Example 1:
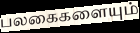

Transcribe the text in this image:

பலகைகளையும்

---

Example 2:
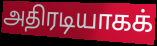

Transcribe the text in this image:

அதிரடியாகக்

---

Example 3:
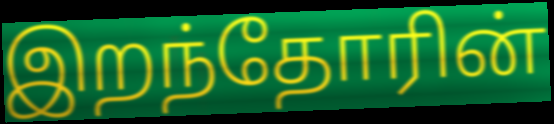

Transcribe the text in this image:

இறந்தோரின்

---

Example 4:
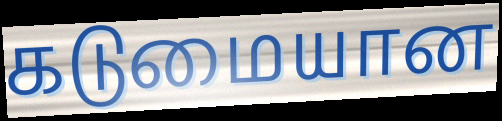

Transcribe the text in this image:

கடுமையான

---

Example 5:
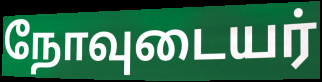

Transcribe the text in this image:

நோவுடையர்